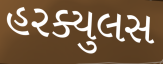
હરક્યુલસ